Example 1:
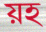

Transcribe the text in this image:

য়হ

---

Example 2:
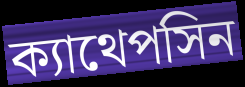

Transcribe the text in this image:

ক্যাথেপসিন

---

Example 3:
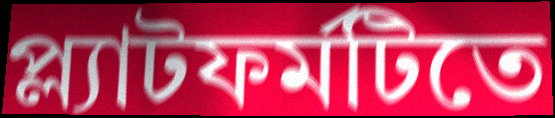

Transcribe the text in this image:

প্ল্যাটফর্মটিতে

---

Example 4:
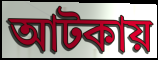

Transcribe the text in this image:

আটকায়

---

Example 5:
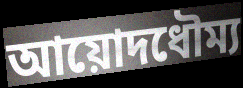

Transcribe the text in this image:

আয়োদধৌম্য